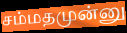
சம்மதமுன்னு